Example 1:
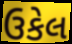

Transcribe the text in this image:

ઉકેલ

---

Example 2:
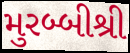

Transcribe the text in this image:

મુરબ્બીશ્રી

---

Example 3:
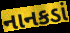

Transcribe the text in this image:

નાનકડાં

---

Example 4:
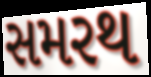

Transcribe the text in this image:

સમરથ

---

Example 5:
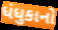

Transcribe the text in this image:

ધંધુકાનો